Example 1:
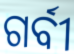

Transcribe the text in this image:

ଗର୍ବୀ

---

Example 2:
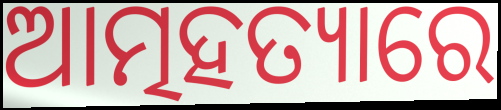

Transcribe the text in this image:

ଆତ୍ମହତ୍ୟାରେ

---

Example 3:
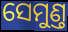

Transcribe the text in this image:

ସେମୁଣ୍ତ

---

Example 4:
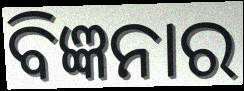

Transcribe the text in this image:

ବିଜ୍ଞନାର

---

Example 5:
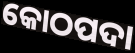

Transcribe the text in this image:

କୋଠପଦା